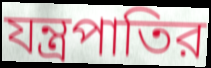
যন্ত্রপাতির